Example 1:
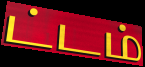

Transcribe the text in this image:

ட்டம்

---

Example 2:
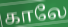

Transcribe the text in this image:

காலே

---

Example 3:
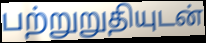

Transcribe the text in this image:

பற்றுறுதியுடன்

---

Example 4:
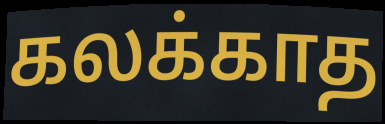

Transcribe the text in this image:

கலக்காத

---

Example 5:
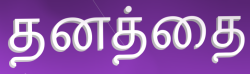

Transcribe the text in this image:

தனத்தை